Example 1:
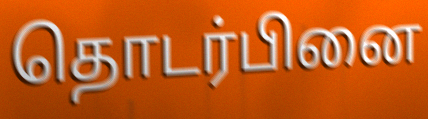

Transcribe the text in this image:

தொடர்பினை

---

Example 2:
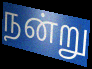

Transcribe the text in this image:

நன்று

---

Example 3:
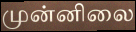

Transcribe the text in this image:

முன்னிலை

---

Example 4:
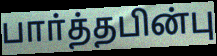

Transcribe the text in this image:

பார்த்தபின்பு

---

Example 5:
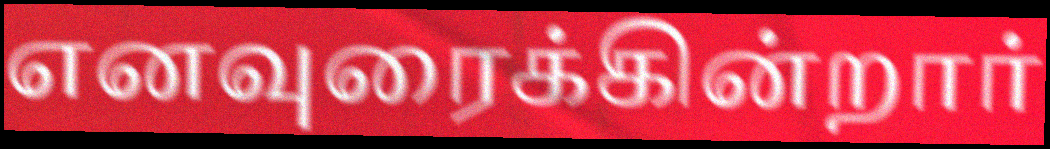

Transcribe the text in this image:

எனவுரைக்கின்றார்